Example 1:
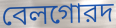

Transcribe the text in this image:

বেলগোরদ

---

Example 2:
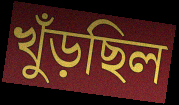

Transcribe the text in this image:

খুঁড়ছিল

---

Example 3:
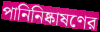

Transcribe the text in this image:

পানিনিষ্কাষণের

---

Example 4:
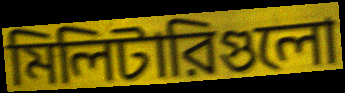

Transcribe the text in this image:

মিলিটারিগুলো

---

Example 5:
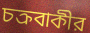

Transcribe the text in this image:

চক্রবাকীর